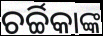
ଚର୍ଚ୍ଚିକାଙ୍କ